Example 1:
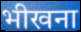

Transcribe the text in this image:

भीखना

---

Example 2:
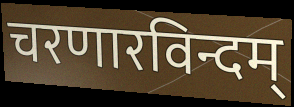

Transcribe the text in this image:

चरणारविन्दम्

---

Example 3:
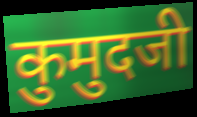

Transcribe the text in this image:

कुमुदजी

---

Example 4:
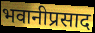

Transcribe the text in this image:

भवानीप्रसाद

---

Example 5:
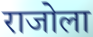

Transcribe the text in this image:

राजोला